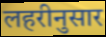
लहरीनुसार